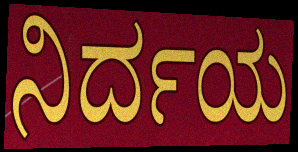
ನಿರ್ದಯ